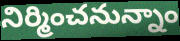
నిర్మించనున్నాం